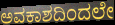
ಅವಕಾಶದಿಂದಲೇ